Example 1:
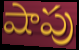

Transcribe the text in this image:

షాపు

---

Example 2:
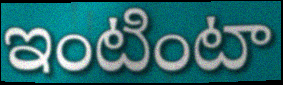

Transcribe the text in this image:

ఇంటింటా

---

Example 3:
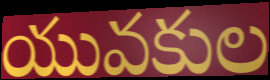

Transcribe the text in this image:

యువకుల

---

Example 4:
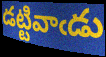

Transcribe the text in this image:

డట్టివాఁడు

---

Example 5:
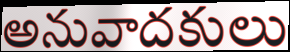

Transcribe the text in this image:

అనువాదకులు